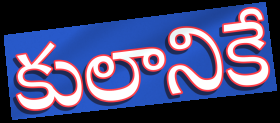
కులానికే